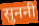
सुननी